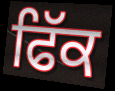
ਫਿੱਕ